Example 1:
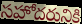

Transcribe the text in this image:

సహోదరునికి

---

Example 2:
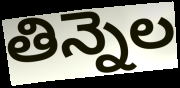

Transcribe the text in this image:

తిన్నెల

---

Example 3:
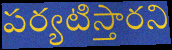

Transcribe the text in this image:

పర్యటిస్తారని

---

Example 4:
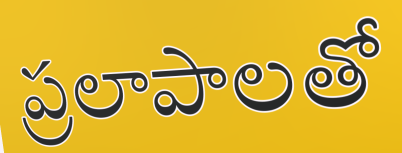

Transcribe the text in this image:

ప్రలాపాలతో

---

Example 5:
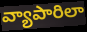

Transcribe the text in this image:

వ్యాపారిలా